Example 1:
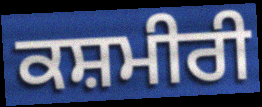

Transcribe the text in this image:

ਕਸ਼ਮੀਰੀ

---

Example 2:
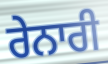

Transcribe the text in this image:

ਰੇਨਾਰੀ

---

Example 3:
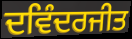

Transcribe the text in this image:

ਦਵਿੰਦਰਜੀਤ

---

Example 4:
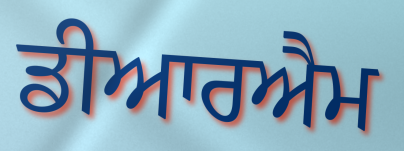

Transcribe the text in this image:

ਡੀਆਰਐਮ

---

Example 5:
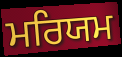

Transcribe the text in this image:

ਮਰਿਯਮ